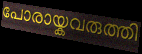
പോരായ്കവരുത്തി